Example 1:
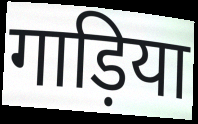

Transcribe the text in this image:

गाड़िया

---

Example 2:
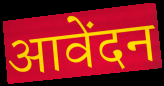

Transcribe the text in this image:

आवेंदन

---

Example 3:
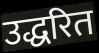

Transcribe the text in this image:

उद्धरित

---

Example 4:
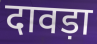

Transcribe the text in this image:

दावड़ा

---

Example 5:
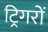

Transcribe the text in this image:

ट्रिगरों